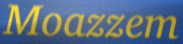
Moazzem